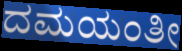
ದಮಯಂತೀ